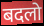
बदलो